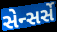
સેન્સર્સે